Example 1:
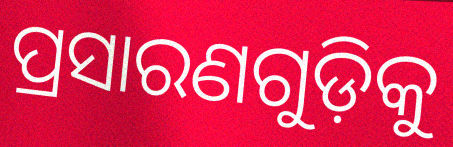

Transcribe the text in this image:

ପ୍ରସାରଣଗୁଡ଼ିକୁ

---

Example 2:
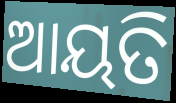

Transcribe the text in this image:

ଆୟତି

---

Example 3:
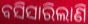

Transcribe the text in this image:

ବସିସାରିଲାଣି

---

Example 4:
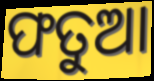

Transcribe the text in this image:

ଫତୁଆ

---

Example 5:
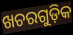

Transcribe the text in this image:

ଖଚରଗୁଡ଼ିକ